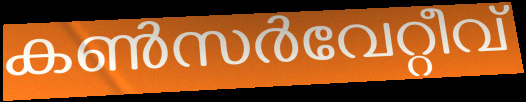
കൺസർവേറ്റീവ്